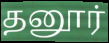
தனூர்